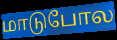
மாடுபோல